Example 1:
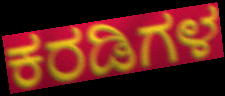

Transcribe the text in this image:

ಕರಡಿಗಳ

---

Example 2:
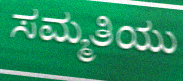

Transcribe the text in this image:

ಸಮ್ಮತಿಯು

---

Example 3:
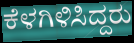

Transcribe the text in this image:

ಕೆಳಗಿಳಿಸಿದ್ದರು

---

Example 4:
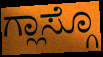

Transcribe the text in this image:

ಗ್ಲಾಸ್ಗೊ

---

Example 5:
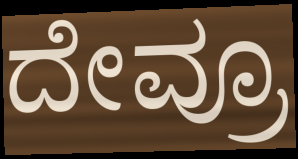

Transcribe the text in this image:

ದೇವ್ರೂ